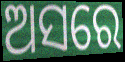
ଅସରେ